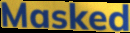
Masked